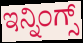
ಇನ್ನಿಂಗ್ಸ್